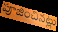
పూజించినట్లు